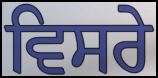
ਵਿਸਰੇ